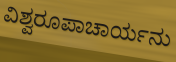
ವಿಶ್ವರೂಪಾಚಾರ್ಯನು